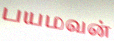
பயமவன்